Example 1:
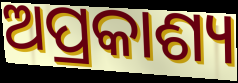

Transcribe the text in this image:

ଅପ୍ରକାଶ୍ୟ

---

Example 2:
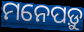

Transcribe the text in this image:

ମନେପଡ଼ୁ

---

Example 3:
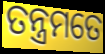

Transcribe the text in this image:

ତନ୍ତ୍ରମତେ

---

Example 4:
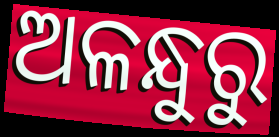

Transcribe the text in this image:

ଅଳନ୍ଧୁରୁ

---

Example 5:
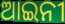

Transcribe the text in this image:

ଆଇନୀ